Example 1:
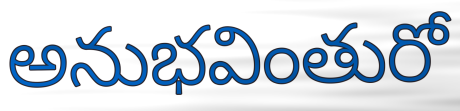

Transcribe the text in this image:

అనుభవింతురో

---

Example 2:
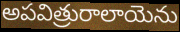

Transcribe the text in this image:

అపవిత్రురాలాయెను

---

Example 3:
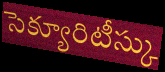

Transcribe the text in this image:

సెక్యూరిటీస్కు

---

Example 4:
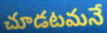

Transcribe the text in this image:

చూడటమనే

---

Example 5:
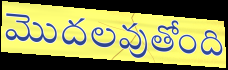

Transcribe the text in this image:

మొదలవుతోంది